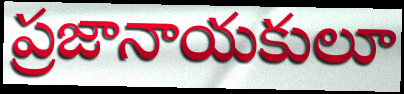
ప్రజానాయకులూ